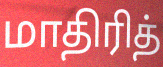
மாதிரித்